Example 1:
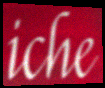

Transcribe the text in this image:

iche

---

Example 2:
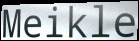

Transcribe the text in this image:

Meikle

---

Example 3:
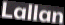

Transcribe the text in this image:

Lallan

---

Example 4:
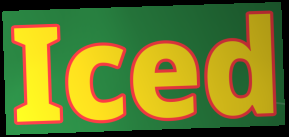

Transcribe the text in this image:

Iced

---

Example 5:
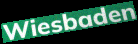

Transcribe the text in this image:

Wiesbaden